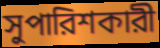
সুপারিশকারী